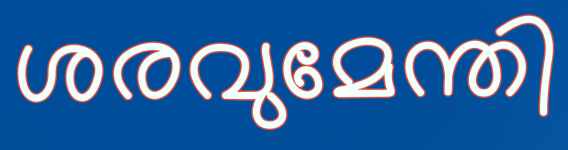
ശരവുമേന്തി